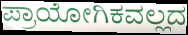
ಪ್ರಾಯೋಗಿಕವಲ್ಲದ